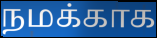
நமக்காக